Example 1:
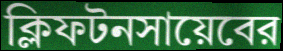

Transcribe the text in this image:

ক্লিফটনসায়েবের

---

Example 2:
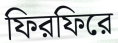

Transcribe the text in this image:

ফিরফিরে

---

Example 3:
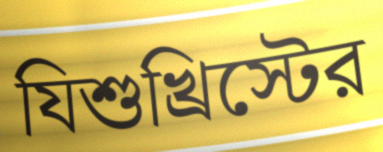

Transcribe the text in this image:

যিশুখ্রিস্টের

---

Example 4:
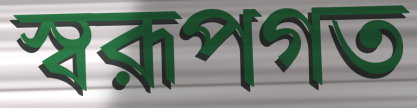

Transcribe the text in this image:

স্বরূপগত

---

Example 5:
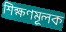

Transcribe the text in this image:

শিক্ষণমূলক